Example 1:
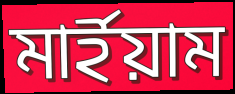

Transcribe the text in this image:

মার্ইয়াম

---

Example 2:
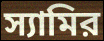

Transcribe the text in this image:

স্যামির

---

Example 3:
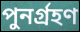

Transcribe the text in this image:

পুনর্গ্রহণ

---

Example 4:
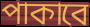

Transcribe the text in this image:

পাকাবে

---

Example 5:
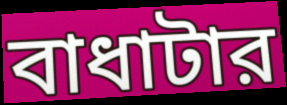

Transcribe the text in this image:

বাধাটার